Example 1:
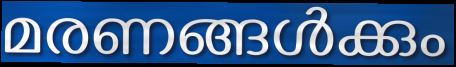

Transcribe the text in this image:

മരണങ്ങൾക്കും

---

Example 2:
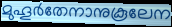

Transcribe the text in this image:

മുഹൂർതേനാനുകൂലേന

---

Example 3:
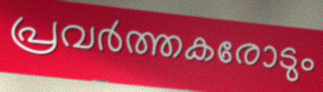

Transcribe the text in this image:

പ്രവർത്തകരോടും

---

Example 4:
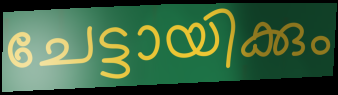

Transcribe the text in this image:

ചേട്ടായിക്കും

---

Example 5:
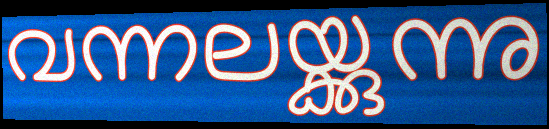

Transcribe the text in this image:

വന്നലയ്ക്കുന്നു